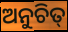
ଅନୁଚିତ୍